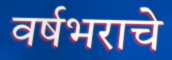
वर्षभराचे